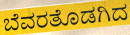
ಬೆವರತೊಡಗಿದ